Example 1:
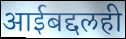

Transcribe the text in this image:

आईबद्दलही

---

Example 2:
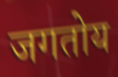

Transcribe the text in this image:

जगतोय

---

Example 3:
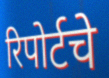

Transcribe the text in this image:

रिपोर्टचे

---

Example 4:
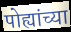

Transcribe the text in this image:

पोह्यांच्या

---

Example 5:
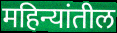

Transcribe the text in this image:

महिन्यांतील